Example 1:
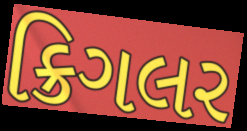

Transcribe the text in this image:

ક્રિગલર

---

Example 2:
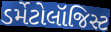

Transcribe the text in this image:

ડર્મેટોલૉજિસ્ટ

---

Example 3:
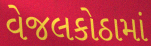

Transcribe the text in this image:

વેજલકોઠામાં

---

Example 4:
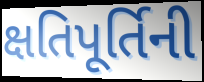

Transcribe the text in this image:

ક્ષતિપૂર્તિની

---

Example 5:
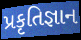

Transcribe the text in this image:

પ્રકૃતિજ્ઞાન